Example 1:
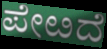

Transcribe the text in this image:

ಪೇೞದೆ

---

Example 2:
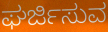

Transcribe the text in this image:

ಘರ್ಜಿಸುವ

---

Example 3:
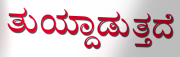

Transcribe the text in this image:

ತುಯ್ದಾಡುತ್ತದೆ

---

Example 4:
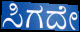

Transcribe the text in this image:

ಸಿಗದೇ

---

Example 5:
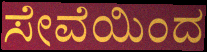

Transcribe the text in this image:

ಸೇವೆಯಿಂದ